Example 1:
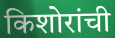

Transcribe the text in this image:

किशोरांची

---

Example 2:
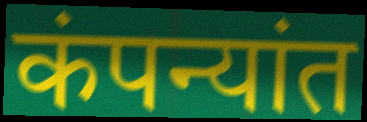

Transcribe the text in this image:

कंपन्यांत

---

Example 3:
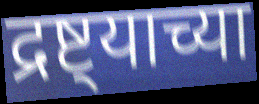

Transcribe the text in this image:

द्रष्ट्याच्या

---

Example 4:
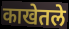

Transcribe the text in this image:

काखेतले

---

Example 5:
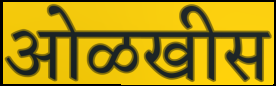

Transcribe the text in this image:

ओळखीस